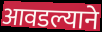
आवडल्याने